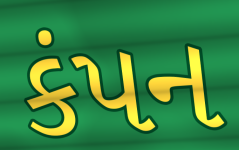
કંપન